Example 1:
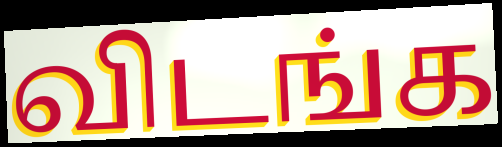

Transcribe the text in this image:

விடங்க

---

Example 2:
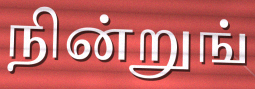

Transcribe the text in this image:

நின்றுங்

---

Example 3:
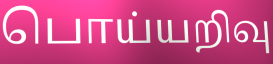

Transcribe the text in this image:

பொய்யறிவு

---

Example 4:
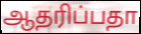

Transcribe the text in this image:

ஆதரிப்பதா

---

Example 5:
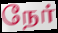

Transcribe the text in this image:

நேர்